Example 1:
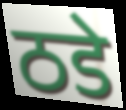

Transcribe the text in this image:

ठडे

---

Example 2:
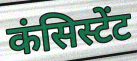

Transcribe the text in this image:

कंसिस्टेंट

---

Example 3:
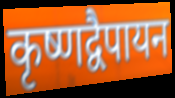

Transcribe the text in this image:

कृष्णद्वैपायन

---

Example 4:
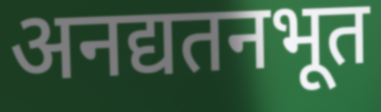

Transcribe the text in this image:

अनद्यतनभूत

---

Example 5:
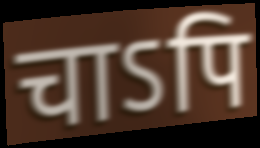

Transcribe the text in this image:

चाऽपि